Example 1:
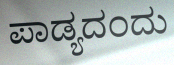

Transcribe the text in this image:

ಪಾಡ್ಯದಂದು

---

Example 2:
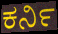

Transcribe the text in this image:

ಕರ್ನಿ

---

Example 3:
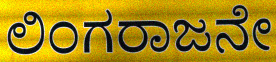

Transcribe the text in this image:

ಲಿಂಗರಾಜನೇ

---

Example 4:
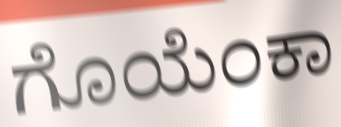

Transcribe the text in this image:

ಗೊಯೆಂಕಾ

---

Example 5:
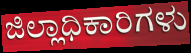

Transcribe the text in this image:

ಜಿಲ್ಲಾಧಿಕಾರಿಗಳು